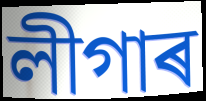
লীগাৰ